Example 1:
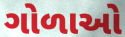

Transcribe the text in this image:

ગોળાઓ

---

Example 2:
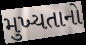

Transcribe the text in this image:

મુખ્યતાનો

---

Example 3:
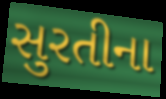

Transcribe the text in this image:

સુરતીના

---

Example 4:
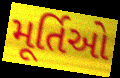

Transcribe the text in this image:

મૂર્તિઓ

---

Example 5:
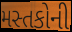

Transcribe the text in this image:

મસ્તકોની